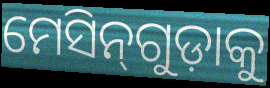
ମେସିନ୍‌ଗୁଡ଼ାକୁ